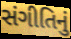
સંગીતિનું